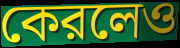
কেরলেও